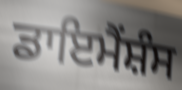
ਡਾਇਮੈਂਸ਼ੰਸ